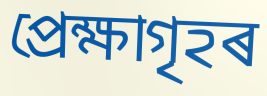
প্ৰেক্ষাগৃহৰ